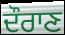
ਦੌਰਾਣ